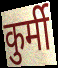
कुर्मी